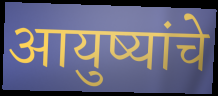
आयुष्यांचे